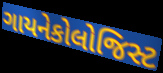
ગાયનેકોલોજિસ્ટ